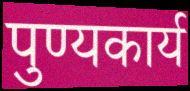
पुण्यकार्य